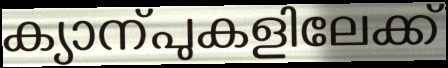
ക്യാന്പുകളിലേക്ക്